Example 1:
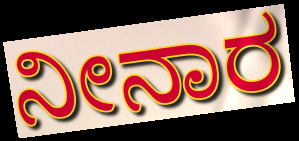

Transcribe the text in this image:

ನೀನಾರ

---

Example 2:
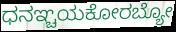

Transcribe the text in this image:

ಧನಞ್ಚಯಕೋರಬ್ಯೋ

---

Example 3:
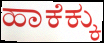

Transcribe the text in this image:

ಹಾಕೆಕ್ಕು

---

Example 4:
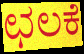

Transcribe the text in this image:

ಛಲಕೆ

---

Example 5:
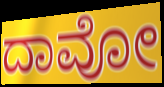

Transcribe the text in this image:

ದಾವೋ